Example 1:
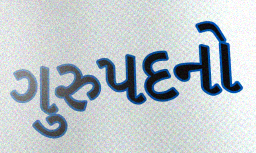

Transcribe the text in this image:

ગુરુપદનો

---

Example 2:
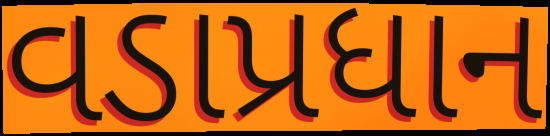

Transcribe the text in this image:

વડાપ્રધાન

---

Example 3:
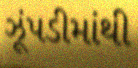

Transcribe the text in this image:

ઝૂંપડીમાંથી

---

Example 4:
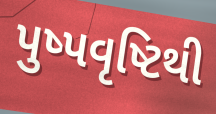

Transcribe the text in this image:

પુષ્પવૃષ્ટિથી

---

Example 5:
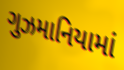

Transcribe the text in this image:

ગુઝમાનિયામાં